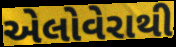
એલોવેરાથી